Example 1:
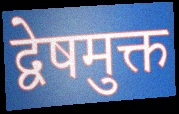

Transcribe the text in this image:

द्वेषमुक्त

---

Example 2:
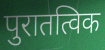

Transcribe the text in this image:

पुरातत्विक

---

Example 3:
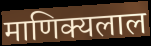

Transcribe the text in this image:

माणिक्यलाल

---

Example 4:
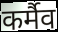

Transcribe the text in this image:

कर्मैव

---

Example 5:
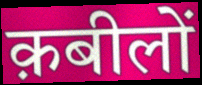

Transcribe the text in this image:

क़बीलों